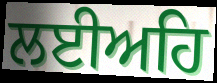
ਲਈਅਹਿ